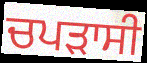
ਚਪੜਾਸੀ